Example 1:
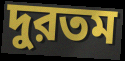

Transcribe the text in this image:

দুরতম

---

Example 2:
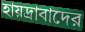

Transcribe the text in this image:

হায়দ্রাবাদের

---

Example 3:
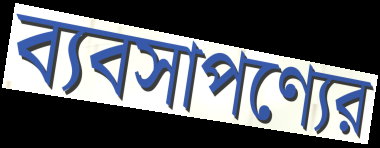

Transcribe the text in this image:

ব্যবসাপণ্যের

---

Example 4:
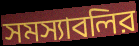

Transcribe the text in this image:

সমস্যাবলির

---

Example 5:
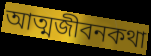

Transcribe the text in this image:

আত্মজীবনকথা